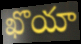
ఖొయా